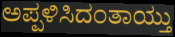
ಅಪ್ಪಳಿಸಿದಂತಾಯ್ತು